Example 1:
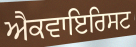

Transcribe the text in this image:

ਐਕਵਾਇਰਿਸਟ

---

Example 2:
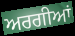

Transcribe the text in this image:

ਅਰਗੀਆਂ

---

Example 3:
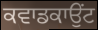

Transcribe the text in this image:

ਕਵਾਡਕਾਉਂਟ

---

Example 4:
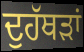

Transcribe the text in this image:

ਦੁਹੱਥੜਾਂ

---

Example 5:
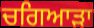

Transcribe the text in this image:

ਚਗਿਆੜਾ